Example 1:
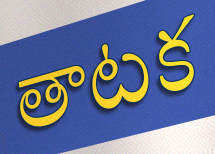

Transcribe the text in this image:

తాటక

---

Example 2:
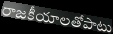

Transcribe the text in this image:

రాజకీయాలతోపాటు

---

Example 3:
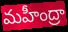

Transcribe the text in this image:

మహీంద్రా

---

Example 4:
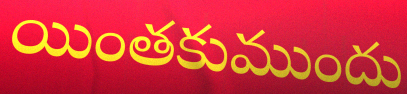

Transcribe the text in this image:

యింతకుముందు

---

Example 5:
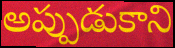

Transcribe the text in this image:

అప్పుడుకాని